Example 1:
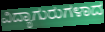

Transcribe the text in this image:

ವಿದ್ಯಾಗುರುಗಳಾದ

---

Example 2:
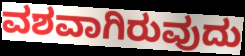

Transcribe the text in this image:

ವಶವಾಗಿರುವುದು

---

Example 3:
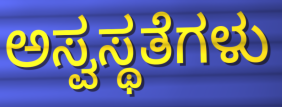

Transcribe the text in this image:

ಅಸ್ವಸ್ಥತೆಗಳು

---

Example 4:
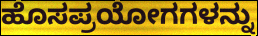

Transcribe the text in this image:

ಹೊಸಪ್ರಯೋಗಗಳನ್ನು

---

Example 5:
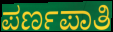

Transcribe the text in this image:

ಪರ್ಣಪಾತಿ